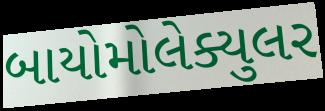
બાયોમોલેક્યુલર